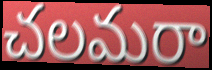
చలమరా